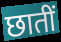
छातीं